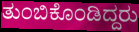
ತುಂಬಿಕೊಂಡಿದ್ದರು